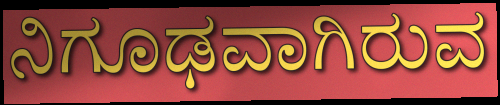
ನಿಗೂಢವಾಗಿರುವ